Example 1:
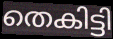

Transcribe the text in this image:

തെകിട്ടി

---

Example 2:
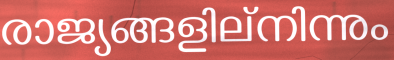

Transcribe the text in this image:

രാജ്യങ്ങളില്നിന്നും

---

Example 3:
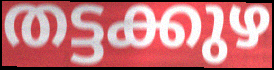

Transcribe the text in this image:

തട്ടക്കുഴ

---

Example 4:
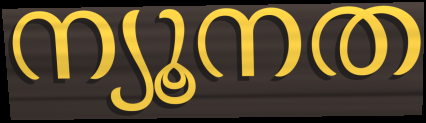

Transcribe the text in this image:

ന്യൂനത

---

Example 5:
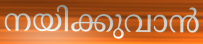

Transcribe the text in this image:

നയിക്കുവാൻ